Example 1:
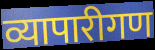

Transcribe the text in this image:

व्यापारीगण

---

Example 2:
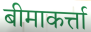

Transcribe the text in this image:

बीमाकर्त्ता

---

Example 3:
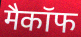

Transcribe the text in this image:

मैकॉफ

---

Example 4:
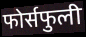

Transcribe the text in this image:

फोर्सफुली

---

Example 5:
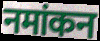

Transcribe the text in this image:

नमांकन